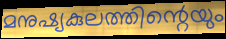
മനുഷ്യകുലത്തിന്റെയും